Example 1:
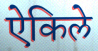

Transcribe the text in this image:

ऐकिले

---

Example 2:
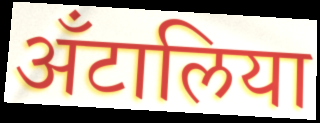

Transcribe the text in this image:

अँटालिया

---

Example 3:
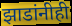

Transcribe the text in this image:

झाडांनीही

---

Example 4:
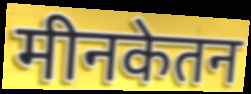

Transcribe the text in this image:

मीनकेतन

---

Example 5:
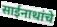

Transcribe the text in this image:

साईनाथांचे